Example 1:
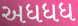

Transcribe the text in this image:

અધધધ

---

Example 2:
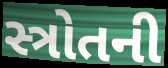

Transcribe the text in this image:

સ્ત્રોતની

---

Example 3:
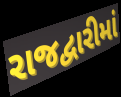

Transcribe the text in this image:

રાજદ્વારીમાં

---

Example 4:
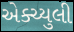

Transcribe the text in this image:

એક્ચ્યુલી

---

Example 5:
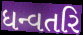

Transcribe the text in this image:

ધન્વતરિ